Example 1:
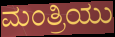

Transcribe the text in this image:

ಮಂತ್ರಿಯು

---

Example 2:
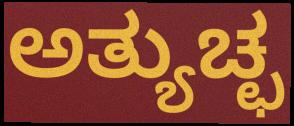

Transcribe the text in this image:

ಅತ್ಯುಚ್ಛ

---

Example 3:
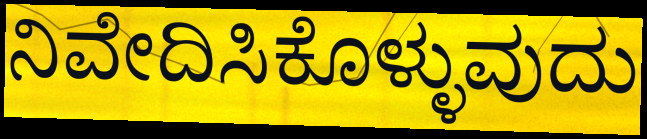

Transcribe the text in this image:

ನಿವೇದಿಸಿಕೊಳ್ಳುವುದು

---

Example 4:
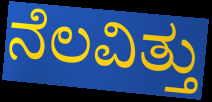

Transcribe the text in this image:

ನೆಲವಿತ್ತು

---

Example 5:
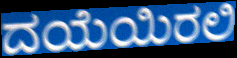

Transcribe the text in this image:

ದಯೆಯಿರಲಿ